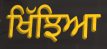
ਖਿੱਝਿਆ